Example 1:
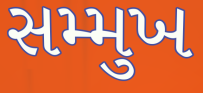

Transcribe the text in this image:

સમ્મુખ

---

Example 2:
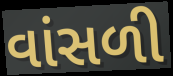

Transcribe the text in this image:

વાંસળી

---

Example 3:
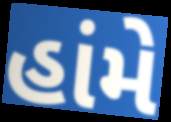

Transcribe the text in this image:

હાંમે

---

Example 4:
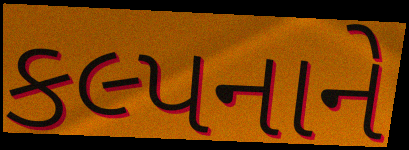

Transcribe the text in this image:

કલ્પનાને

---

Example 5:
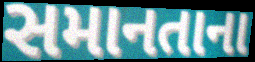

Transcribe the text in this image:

સમાનતાના